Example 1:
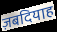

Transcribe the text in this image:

ज़बदियाह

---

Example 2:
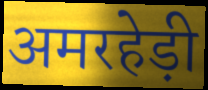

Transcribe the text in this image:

अमरहेड़ी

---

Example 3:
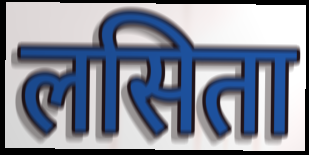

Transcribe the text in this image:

लसिता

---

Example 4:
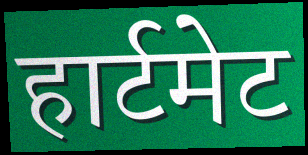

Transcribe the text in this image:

हार्टमेट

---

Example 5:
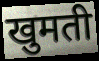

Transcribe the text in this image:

खुमती